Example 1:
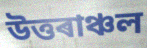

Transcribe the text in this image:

উত্তৰাঞ্চল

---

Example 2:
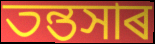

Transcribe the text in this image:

তন্তসাৰ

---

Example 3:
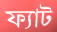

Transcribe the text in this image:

ফ্যাট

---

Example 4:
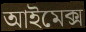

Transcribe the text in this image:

আইমেক্স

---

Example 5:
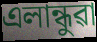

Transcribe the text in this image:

এলান্ধুৱা